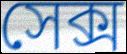
সেক্স